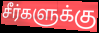
சீர்களுக்கு